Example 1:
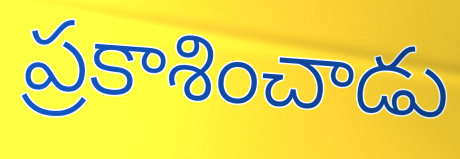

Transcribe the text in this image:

ప్రకాశించాడు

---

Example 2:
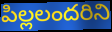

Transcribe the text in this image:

పిల్లలందరిని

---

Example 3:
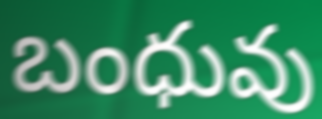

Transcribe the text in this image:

బంధువు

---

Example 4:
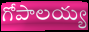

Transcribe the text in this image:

గోపాలయ్య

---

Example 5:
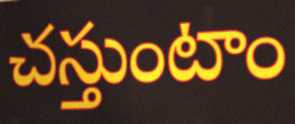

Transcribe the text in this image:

చస్తుంటాం